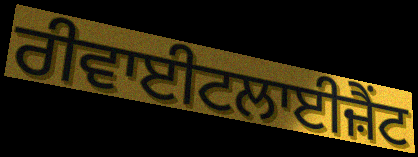
ਰੀਵਾਈਟਲਾਈਜ਼ੈਂਟ